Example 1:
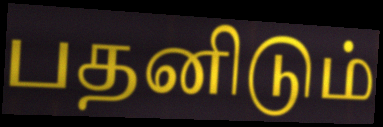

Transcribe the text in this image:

பதனிடும்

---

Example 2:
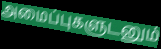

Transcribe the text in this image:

அமைப்புகளுடனும்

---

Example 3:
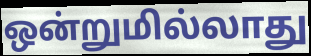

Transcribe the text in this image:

ஒன்றுமில்லாது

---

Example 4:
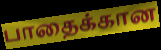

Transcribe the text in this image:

பாதைக்கான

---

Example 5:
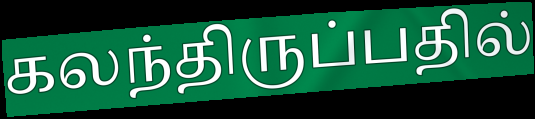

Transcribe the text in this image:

கலந்திருப்பதில்